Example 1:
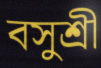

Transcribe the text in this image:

বসুশ্রী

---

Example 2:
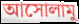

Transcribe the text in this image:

আসোলামু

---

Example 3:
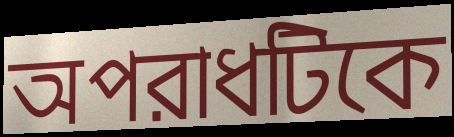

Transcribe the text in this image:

অপরাধটিকে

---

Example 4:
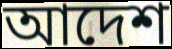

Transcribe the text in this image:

আদেশ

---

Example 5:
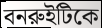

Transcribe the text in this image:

বনরুইটিকে